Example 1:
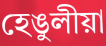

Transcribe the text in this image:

হেঙুলীয়া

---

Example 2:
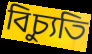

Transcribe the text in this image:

বিচ্যুতি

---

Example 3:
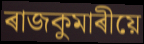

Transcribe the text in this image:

ৰাজকুমাৰীয়ে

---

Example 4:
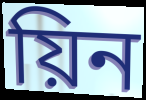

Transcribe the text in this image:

য়িন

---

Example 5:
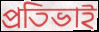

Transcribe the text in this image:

প্ৰতিভাই